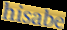
hisabe